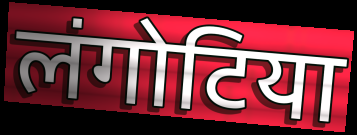
लंगोटिया